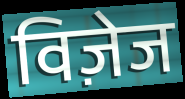
विज़ेज